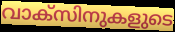
വാക്സിനുകളുടെ